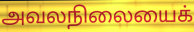
அவலநிலையைக்